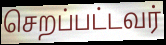
செறப்பட்டவர்